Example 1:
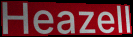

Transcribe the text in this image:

Heazell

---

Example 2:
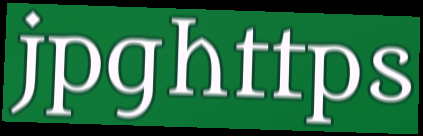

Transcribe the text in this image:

jpghttps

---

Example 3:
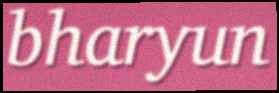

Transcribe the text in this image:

bharyun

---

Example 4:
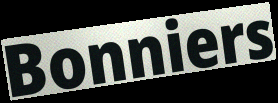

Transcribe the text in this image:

Bonniers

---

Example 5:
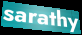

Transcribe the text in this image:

sarathy